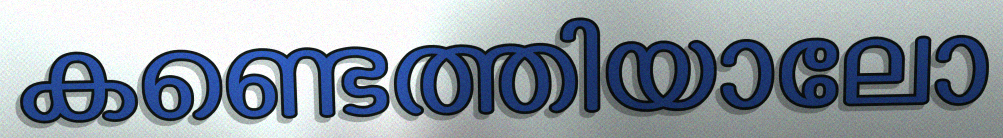
കണ്ടെത്തിയാലോ